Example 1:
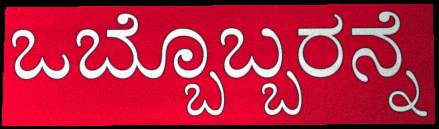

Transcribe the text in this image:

ಒಬ್ಬೊಬ್ಬರನ್ನೆ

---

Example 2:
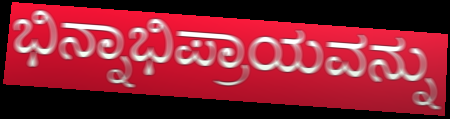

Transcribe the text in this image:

ಭಿನ್ನಾಭಿಪ್ರಾಯವನ್ನು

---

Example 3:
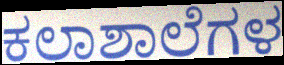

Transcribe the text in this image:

ಕಲಾಶಾಲೆಗಳ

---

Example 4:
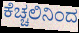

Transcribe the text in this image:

ಕೆಚ್ಚಲಿನಿಂದ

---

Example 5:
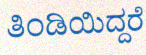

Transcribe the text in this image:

ತಿಂಡಿಯಿದ್ದರೆ